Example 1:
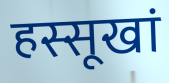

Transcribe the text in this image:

हस्सूखां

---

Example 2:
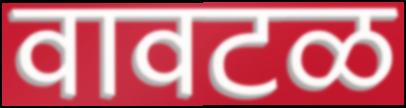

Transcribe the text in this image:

वावटळ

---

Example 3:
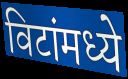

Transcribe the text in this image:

विटांमध्ये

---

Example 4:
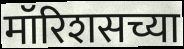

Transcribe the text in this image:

मॉरिशसच्या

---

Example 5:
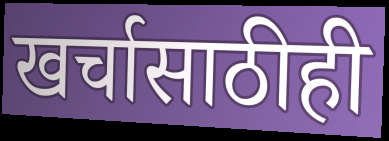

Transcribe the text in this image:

खर्चासाठीही